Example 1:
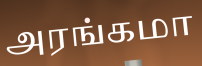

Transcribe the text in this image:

அரங்கமா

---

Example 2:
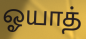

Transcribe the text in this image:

ஓயாத்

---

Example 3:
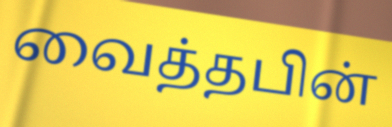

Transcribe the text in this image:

வைத்தபின்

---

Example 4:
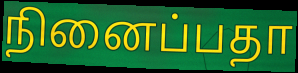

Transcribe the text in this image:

நினைப்பதா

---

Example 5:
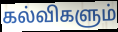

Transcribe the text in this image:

கல்விகளும்